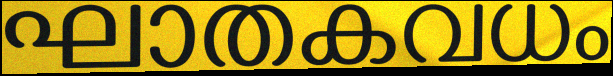
ഘാതകവധം